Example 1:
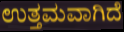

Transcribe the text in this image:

ಉತ್ತಮವಾಗಿದೆ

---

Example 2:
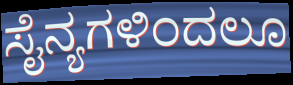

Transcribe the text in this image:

ಸೈನ್ಯಗಳಿಂದಲೂ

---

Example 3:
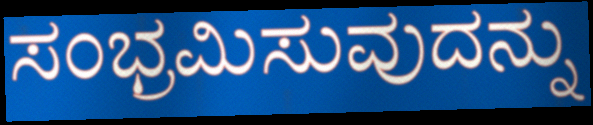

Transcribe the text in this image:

ಸಂಭ್ರಮಿಸುವುದನ್ನು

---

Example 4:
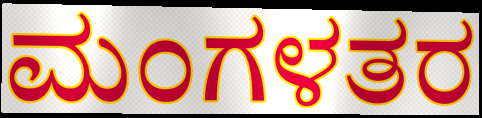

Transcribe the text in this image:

ಮಂಗಳತರ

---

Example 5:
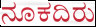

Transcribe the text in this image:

ನೂಕದಿರು